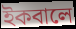
ইকবালে